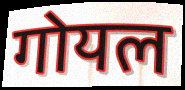
गोयल